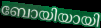
ബോയിയായി